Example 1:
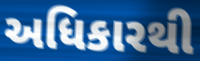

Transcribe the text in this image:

અધિકારથી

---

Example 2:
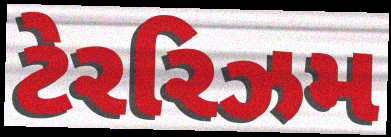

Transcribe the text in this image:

ટેરરિઝમ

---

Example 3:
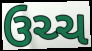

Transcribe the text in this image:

ઉચ્ચ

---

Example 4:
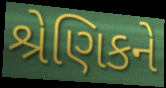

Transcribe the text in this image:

શ્રેણિકને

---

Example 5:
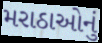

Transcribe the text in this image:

મરાઠાઓનું